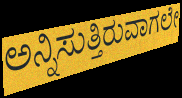
ಅನ್ನಿಸುತ್ತಿರುವಾಗಲೇ